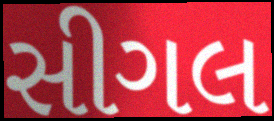
સીગલ